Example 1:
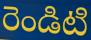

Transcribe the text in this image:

రెండిటి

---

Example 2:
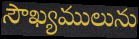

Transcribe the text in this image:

సౌఖ్యములును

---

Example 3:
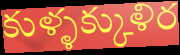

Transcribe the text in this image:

కుళ్ళక్కుళిర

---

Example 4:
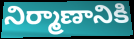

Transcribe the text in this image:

నిర్మాణానికి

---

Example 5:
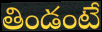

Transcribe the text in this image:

తిండంటే